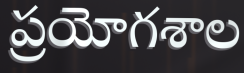
ప్రయోగశాల